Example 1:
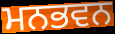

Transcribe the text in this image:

ਮਨਭਵਨ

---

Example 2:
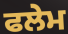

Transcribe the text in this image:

ਫਲੇਮ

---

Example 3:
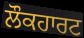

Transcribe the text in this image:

ਲੌਕਹਾਰਟ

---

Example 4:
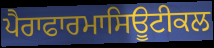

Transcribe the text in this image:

ਪੈਰਾਫਾਰਮਾਸਿਊਟੀਕਲ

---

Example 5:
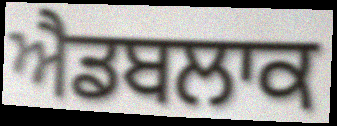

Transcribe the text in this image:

ਐਡਬਲਾਕ